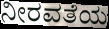
ನೀರವತೆಯ